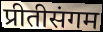
प्रीतीसंगम